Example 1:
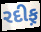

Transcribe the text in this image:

રદીફ઼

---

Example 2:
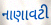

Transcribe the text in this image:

નાણાવટી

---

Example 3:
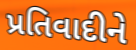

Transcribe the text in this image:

પ્રતિવાદીને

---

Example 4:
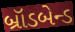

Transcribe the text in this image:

બ્રૉડબેન્ડ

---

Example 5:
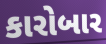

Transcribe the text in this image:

કારોબાર